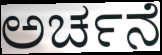
ಅರ್ಚನೆ